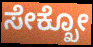
ಸೇಕ್ಖೋ